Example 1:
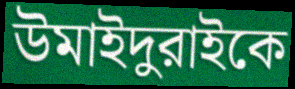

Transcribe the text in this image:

উমাইদুরাইকে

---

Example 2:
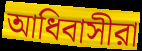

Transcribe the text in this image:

আধিবাসীরা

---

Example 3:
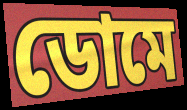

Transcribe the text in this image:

ডোমে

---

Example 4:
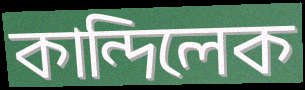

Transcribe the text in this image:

কান্দিলেক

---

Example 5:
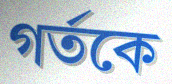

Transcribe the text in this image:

গর্তকে